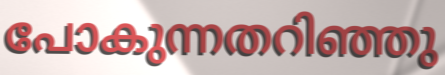
പോകുന്നതറിഞ്ഞു